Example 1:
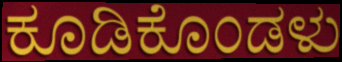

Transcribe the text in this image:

ಕೂಡಿಕೊಂಡಳು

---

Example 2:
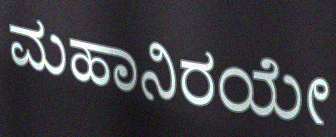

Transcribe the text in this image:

ಮಹಾನಿರಯೇ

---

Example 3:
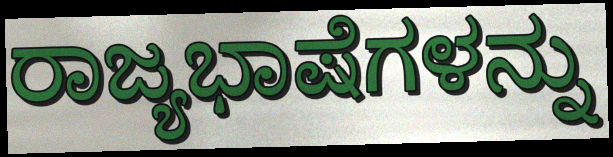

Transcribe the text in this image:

ರಾಜ್ಯಭಾಷೆಗಳನ್ನು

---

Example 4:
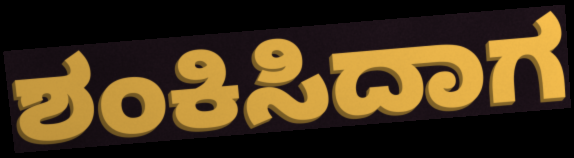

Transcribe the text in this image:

ಶಂಕಿಸಿದಾಗ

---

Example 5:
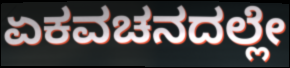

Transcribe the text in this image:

ಏಕವಚನದಲ್ಲೇ